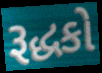
રૂદ્ધકો